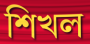
শিখল